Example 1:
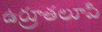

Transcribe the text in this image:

ఉర్రూతలూపి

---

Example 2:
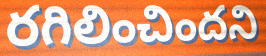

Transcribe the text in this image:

రగిలించిందని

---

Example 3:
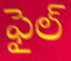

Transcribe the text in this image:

ఫైల్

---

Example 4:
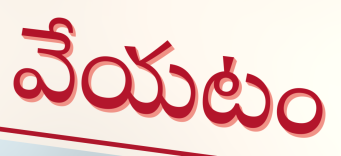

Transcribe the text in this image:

వేయటం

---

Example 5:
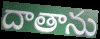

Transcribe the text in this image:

దాతాను